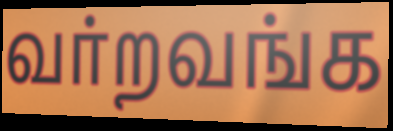
வர்றவங்க